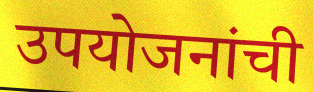
उपयोजनांची